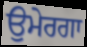
ਉਮੇਰਗਾ